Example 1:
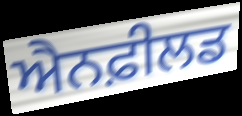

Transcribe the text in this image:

ਐਨਫ਼ੀਲਡ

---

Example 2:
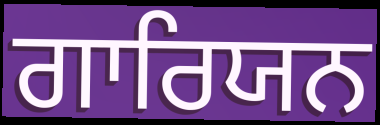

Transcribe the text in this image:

ਗਾਰਿਯਨ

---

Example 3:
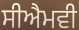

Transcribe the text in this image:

ਸੀਐਮਵੀ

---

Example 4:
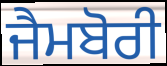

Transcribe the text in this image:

ਜੈਮਬੋਰੀ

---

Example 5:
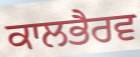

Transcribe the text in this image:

ਕਾਲਭੈਰਵ